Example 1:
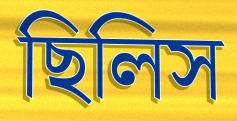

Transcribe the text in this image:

ছিলিস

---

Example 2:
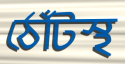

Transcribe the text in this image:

ঠোঁটস্থ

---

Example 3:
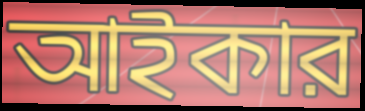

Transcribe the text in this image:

আইকার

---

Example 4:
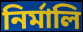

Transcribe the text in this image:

নির্মালি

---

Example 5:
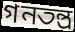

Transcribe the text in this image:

গনতন্ত্র